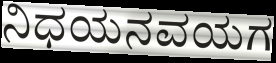
ನಿಧಯನವಯಗ